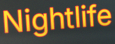
Nightlife